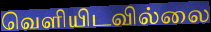
வெளியிடவில்லை